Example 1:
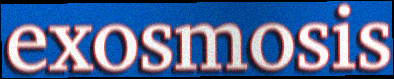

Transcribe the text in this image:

exosmosis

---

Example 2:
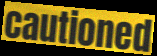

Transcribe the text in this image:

cautioned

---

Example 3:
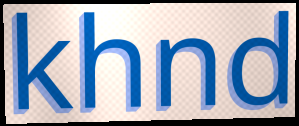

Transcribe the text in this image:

khnd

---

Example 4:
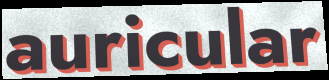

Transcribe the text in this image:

auricular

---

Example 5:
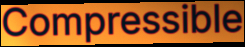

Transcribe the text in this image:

Compressible